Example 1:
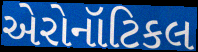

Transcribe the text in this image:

એરોનૉટિકલ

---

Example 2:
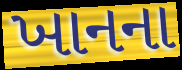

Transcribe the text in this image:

ખાનના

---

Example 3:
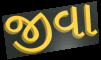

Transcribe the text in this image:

જીવા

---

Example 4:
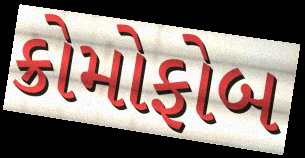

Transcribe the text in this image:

ક્રોમોફોબ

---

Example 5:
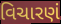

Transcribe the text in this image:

વિચારણં